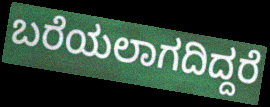
ಬರೆಯಲಾಗದಿದ್ದರೆ